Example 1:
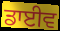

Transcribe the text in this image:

ਡਾਈਵ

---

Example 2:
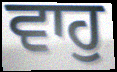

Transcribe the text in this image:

ਵਾਹੁ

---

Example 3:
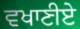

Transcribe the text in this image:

ਵਖਾਣੀਏ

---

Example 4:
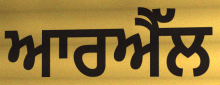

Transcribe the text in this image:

ਆਰਐੱਲ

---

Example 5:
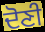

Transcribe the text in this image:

ਦੋਣੀ